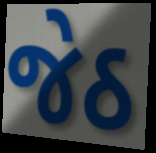
જેઠ